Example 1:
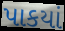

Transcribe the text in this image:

પાકયાં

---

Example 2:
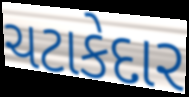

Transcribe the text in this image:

ચટાકેદાર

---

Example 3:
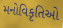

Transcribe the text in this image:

મનોવિકૃતિઓ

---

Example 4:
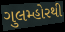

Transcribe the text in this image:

ગુલમ્હોરથી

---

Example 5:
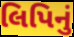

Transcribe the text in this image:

લિપિનું